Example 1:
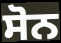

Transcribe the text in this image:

ਸੋਨ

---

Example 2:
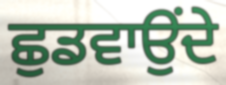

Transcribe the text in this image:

ਛੁਡਵਾਉਂਦੇ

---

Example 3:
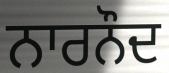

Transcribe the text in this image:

ਨਾਰਨੌਦ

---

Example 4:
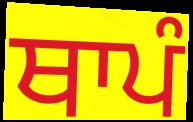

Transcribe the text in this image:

ਥਾਪੰ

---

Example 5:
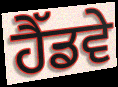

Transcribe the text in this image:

ਹੈੱਡਵੇ